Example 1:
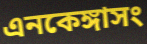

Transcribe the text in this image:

এনকেঙ্গাসং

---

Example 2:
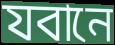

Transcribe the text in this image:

যবানে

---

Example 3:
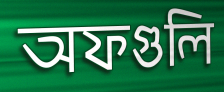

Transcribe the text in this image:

অফগুলি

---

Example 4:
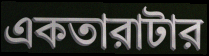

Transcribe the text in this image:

একতারাটার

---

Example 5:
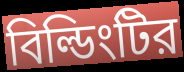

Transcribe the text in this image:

বিল্ডিংটির